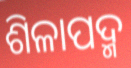
ଶିଳାପଦ୍ମ